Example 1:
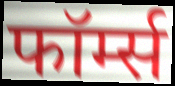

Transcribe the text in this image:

फॉर्म्स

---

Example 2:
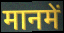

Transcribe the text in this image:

मानमें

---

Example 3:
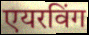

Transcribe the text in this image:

एयरविंग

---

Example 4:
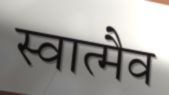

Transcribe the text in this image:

स्वात्मैव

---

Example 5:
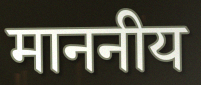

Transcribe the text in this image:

माननीय